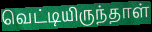
வெட்டியிருந்தாள்